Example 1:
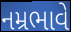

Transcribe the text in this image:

નમ્રભાવે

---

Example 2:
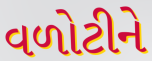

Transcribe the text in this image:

વળોટીને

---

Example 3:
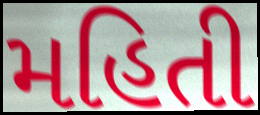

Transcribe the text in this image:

મહિતી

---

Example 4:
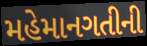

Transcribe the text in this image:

મહેમાનગતીની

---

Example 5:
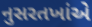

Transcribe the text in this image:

નુસરતખાંએ